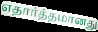
எதார்த்தமானது